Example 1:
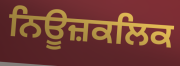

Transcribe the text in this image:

ਨਿਊਜ਼ਕਲਿਕ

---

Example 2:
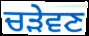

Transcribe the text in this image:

ਚੜੇਵਣ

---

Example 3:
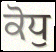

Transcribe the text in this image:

ਕੋਧੁ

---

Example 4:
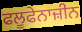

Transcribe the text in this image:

ਫਲੂਫੇਨਾਜ਼ੀਨ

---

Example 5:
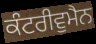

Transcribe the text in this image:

ਕੰਟਰੀਵੁਮੈਨ